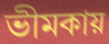
ভীমকায়